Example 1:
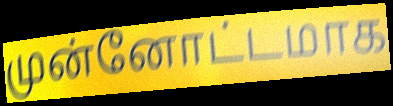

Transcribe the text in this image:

முன்னோட்டமாக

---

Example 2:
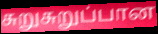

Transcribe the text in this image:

சுறுசுறுப்பான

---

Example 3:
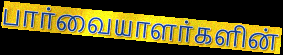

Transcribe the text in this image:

பார்வையாளர்களின்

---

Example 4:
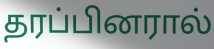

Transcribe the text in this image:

தரப்பினரால்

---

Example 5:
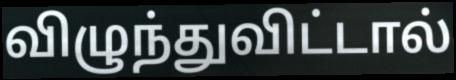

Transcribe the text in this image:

விழுந்துவிட்டால்